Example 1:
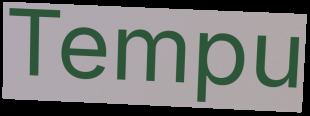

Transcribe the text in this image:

Tempu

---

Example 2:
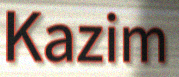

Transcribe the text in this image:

Kazim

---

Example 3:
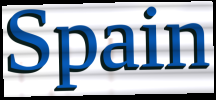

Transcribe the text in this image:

Spain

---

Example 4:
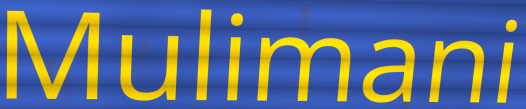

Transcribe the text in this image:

Mulimani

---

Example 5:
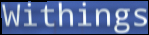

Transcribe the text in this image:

Withings